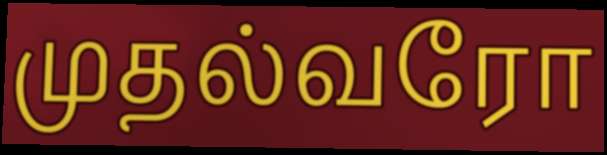
முதல்வரோ